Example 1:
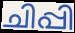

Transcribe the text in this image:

ചിപ്പി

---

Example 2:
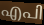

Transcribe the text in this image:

എപി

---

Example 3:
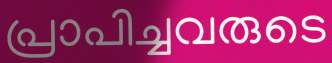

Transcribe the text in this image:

പ്രാപിച്ചവരുടെ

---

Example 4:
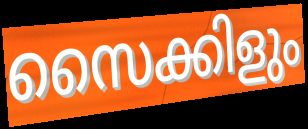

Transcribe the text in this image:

സൈക്കിളും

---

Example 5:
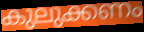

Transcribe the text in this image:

കുലുക്കണം